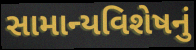
સામાન્યવિશેષનું